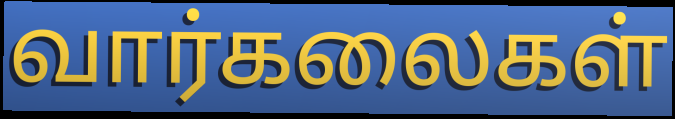
வார்கலைகள்